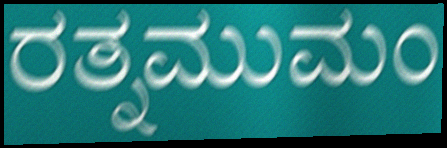
ರತ್ನಮುಮಂ